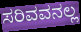
ಸರಿವವನಲ್ಲ